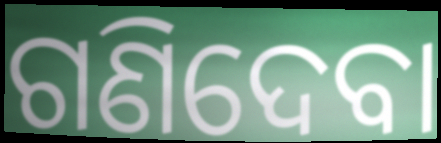
ଗଣିଦେବା